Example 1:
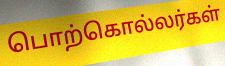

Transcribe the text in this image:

பொற்கொல்லர்கள்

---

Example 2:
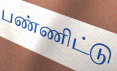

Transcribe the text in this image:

பண்ணிட்டு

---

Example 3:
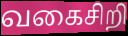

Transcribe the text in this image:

வகைசிறி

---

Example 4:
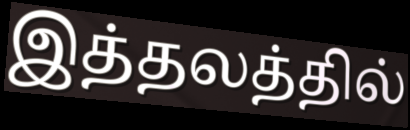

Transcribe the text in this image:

இத்தலத்தில்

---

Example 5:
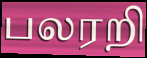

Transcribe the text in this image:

பலரறி